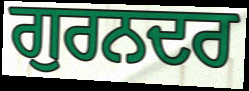
ਗੁਰਨਦਰ